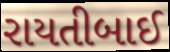
રાયતીબાઈ